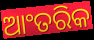
ଆଂତରିକ